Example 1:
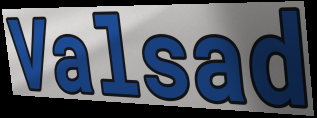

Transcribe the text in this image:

Valsad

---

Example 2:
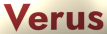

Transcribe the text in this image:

Verus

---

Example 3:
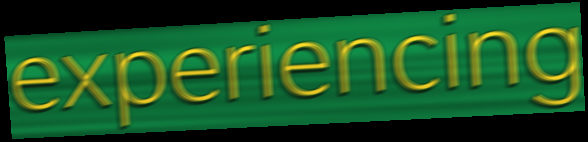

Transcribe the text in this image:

experiencing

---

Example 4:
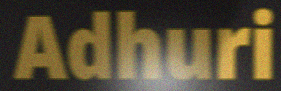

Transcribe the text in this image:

Adhuri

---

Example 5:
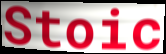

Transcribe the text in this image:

Stoic